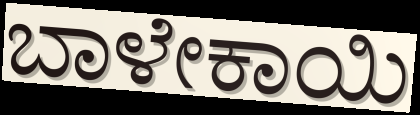
ಬಾಳೇಕಾಯಿ